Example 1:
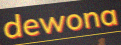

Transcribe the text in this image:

dewona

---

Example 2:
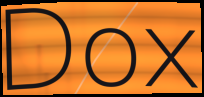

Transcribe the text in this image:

Dox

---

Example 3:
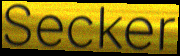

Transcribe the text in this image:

Secker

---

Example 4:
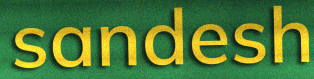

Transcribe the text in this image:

sandesh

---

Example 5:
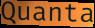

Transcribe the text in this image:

Quanta